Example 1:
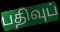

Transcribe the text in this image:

பதிவுப்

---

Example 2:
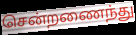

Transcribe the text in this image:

சென்றணைந்து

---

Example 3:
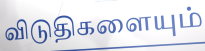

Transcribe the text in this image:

விடுதிகளையும்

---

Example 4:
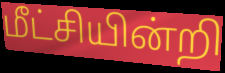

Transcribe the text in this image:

மீட்சியின்றி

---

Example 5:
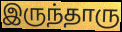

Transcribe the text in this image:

இருந்தாரு